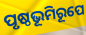
ପୃଷ୍ଠଭୂମିରୂପେ